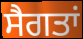
ਸੈਗਤਾਂ